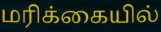
மரிக்கையில்